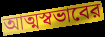
আত্মস্বভাবের